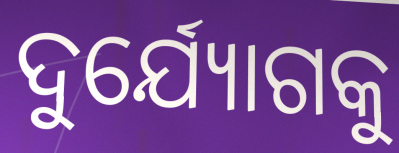
ଦୁର୍ଯ୍ୟୋଗକୁ